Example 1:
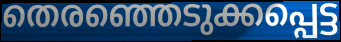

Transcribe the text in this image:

തെരഞ്ഞെടുക്കപ്പെട്ട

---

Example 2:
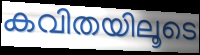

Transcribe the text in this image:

കവിതയിലൂടെ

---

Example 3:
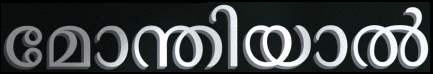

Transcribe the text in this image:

മോന്തിയാൽ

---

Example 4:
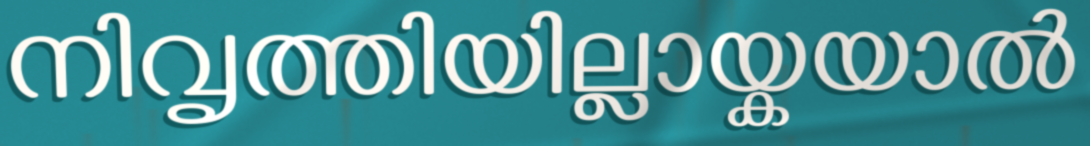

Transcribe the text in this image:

നിവൃത്തിയില്ലായ്കയാൽ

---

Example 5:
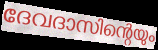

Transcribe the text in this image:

ദേവദാസിന്റെയും